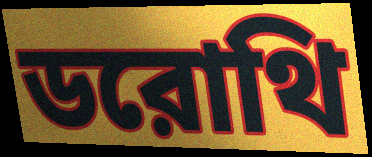
ডরোথি